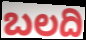
ಬಲದಿ